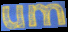
um